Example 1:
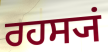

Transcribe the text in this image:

ਰਹਸ੍ਯਂ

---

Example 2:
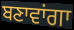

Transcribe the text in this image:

ਬਣਾਵਾਂਗਾ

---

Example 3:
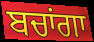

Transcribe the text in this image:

ਬਚਾਂਗਾ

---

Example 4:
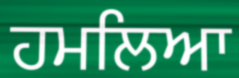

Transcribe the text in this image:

ਹਮਲਿਆ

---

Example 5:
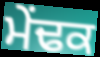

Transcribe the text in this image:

ਮੇਂਢਕ